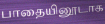
பாதையினூடாக